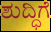
ಶುದ್ಧಿಗೆ